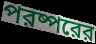
পরষ্পরের